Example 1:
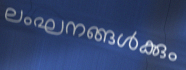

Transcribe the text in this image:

ലംഘനങ്ങൾക്കും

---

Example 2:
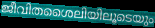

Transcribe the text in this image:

ജീവിതശൈലിയിലൂടെയും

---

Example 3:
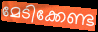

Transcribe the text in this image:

മേടിക്കേണ്ട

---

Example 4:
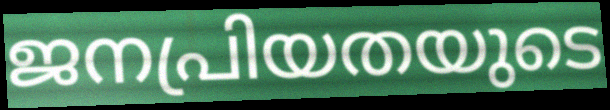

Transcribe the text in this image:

ജനപ്രിയതയുടെ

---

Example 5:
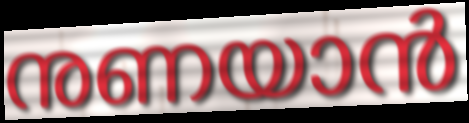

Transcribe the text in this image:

നുണയാൻ